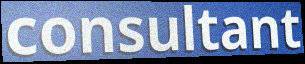
consultant